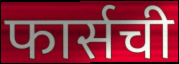
फार्सची